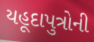
યહૂદાપુત્રોની